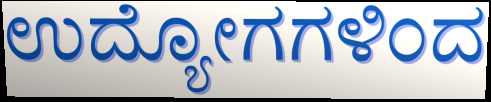
ಉದ್ಯೋಗಗಳಿಂದ